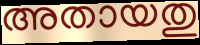
അതായതു